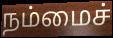
நம்மைச்